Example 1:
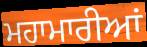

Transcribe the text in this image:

ਮਹਾਮਾਰੀਆਂ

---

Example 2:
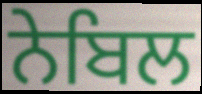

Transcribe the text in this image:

ਨੇਬਿਲ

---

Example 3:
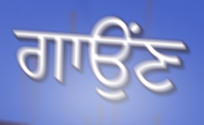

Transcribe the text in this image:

ਗਾਉਂਣ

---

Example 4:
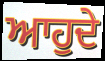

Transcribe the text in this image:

ਆਹੁਦੇ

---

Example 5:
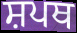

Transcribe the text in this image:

ਸ਼ਪਥ